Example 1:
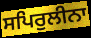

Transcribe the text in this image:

ਸਪਿਰੁਲੀਨਾ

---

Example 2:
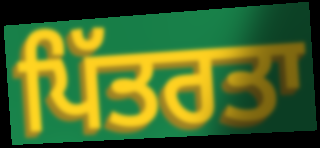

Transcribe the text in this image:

ਪਿੱਤਰਤਾ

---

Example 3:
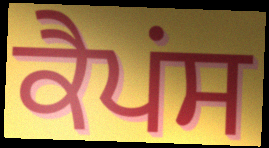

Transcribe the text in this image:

ਕੈਪਂਸ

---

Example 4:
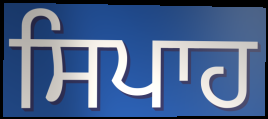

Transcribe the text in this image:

ਸਿਪਾਹ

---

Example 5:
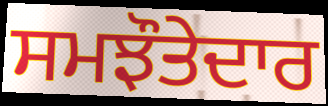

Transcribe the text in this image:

ਸਮਝੌਤੇਦਾਰ